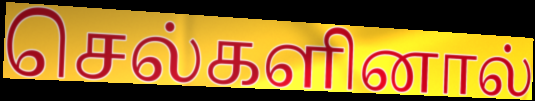
செல்களினால்